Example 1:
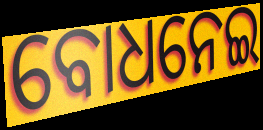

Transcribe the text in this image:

ବୋଧନେଇ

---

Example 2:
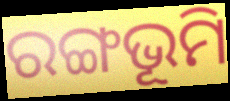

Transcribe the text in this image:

ରଙ୍ଗଭୂମି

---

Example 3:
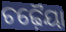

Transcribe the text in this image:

ଚଢ଼ୈୟା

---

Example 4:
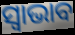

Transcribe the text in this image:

ସ୍ୱାଭାବ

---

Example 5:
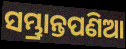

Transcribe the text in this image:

ସମ୍ଭ୍ରାନ୍ତପଣିଆ